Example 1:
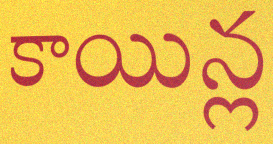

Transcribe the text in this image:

కాయిన్ల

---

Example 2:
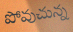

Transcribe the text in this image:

పోవుచున్న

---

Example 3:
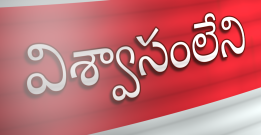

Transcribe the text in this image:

విశ్వాసంలేని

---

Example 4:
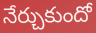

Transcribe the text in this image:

నేర్చుకుందో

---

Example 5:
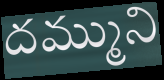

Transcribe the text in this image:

దమ్ముని